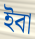
ইবা